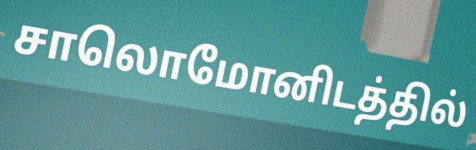
சாலொமோனிடத்தில்